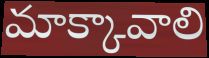
మాక్కావాలి